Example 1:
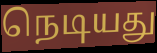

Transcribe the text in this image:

நெடியது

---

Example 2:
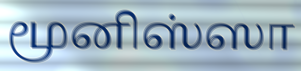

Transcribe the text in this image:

மூனிஸ்ஸா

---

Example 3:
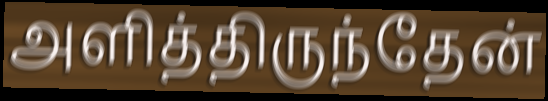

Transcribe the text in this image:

அளித்திருந்தேன்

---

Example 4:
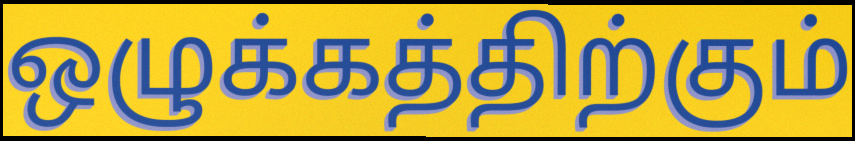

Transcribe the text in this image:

ஒழுக்கத்திற்கும்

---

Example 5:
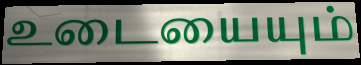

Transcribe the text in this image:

உடையையும்